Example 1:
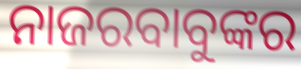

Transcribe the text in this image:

ନାଜରବାବୁଙ୍କର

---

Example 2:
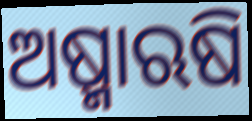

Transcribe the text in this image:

ଅଷ୍ମାଋଷି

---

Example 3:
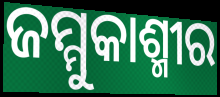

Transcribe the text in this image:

ଜମ୍ମୁକାଶ୍ମୀର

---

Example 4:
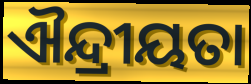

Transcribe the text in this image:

ଐନ୍ଦ୍ରୀୟତା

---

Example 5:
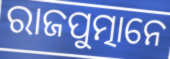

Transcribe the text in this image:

ରାଜପୁତ୍ମାନେ